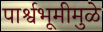
पार्श्वभूमीमुळे